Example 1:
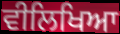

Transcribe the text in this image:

ਵੀਲਿਖਿਆ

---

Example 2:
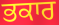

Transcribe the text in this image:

ਭਕਾਰ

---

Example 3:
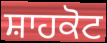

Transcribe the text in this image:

ਸ਼ਾਹਕੋਟ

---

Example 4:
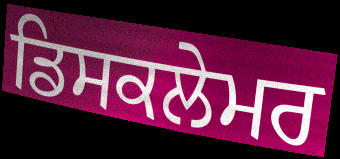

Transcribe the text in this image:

ਡਿਸਕਲੇਮਰ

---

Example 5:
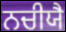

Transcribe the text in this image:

ਨਚੀਯੈ